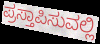
ಪ್ರಸ್ತಾಪಿಸುವಲ್ಲಿ